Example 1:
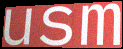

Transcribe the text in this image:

usm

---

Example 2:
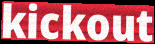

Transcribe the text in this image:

kickout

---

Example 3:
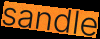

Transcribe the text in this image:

sandle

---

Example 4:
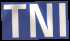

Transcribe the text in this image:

TNI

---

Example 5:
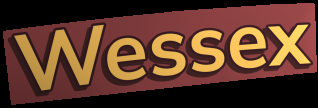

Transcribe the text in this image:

Wessex